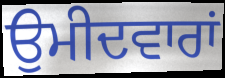
ਉਮੀਦਵਾਰਾਂ